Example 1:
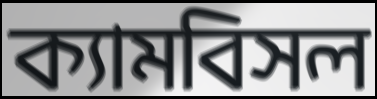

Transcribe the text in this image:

ক্যামবিসল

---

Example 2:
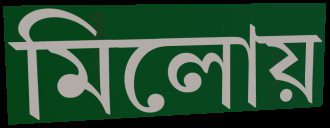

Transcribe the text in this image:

মিলোয়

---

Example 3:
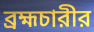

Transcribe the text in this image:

ব্রহ্মচারীর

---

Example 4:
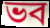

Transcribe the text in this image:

ভব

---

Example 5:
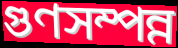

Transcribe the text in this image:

গুণসম্পন্ন